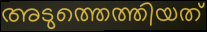
അടുത്തെത്തിയത്